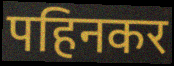
पहिनकर